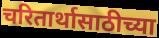
चरितार्थासाठीच्या